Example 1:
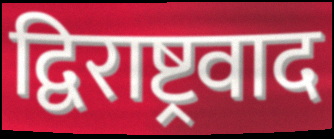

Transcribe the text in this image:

द्विराष्ट्रवाद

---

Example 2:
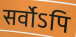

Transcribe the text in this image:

सर्वोऽपि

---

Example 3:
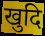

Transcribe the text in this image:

खुदि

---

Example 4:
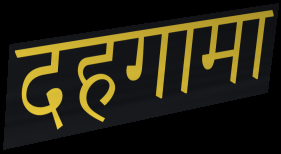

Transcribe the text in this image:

दहगामा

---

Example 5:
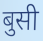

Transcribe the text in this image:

बुसी